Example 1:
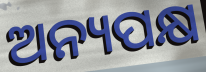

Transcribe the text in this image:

ଅନ୍ୟପକ୍ଷ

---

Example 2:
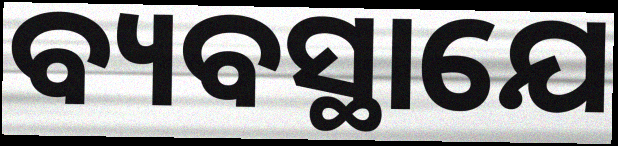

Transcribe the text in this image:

ବ୍ୟବସ୍ଥାଯେ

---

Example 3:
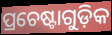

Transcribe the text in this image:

ପ୍ରଚେଷ୍ଟାଗୁଡ଼ିକ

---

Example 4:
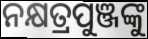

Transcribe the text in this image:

ନକ୍ଷତ୍ରପୁଞ୍ଜଙ୍କୁ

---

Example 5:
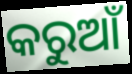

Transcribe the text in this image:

କରୁଆଁ